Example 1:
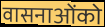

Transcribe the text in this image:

वासनाओंको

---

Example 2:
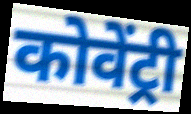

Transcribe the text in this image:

कोवेंट्री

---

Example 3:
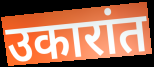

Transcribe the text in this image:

उकारांत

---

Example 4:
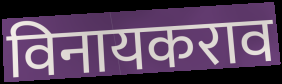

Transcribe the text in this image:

विनायकराव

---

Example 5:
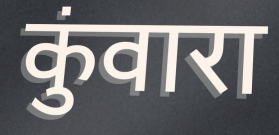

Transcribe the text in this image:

कुंवारा